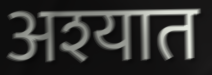
अश्यात